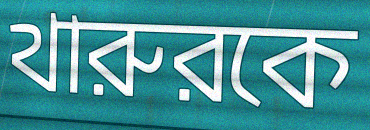
থারুরকে